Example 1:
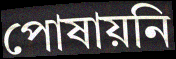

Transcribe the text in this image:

পোষায়নি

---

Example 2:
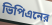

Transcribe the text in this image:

ভিপিএনের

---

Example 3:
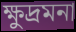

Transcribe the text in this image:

ক্ষুদ্রমনা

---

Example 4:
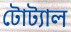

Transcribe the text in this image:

টোট্যাল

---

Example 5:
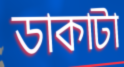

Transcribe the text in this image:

ডাকাটা